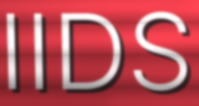
IIDS